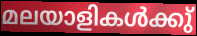
മലയാളികൾക്കു്